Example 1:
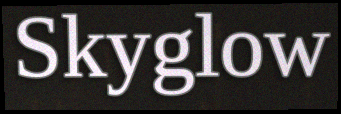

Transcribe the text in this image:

Skyglow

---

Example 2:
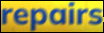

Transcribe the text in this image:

repairs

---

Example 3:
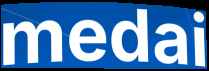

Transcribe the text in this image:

medai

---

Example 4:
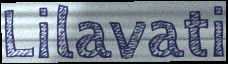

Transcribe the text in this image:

Lilavati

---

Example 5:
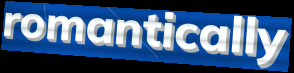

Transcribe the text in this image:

romantically